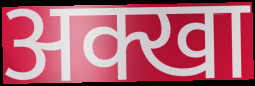
अक्खा